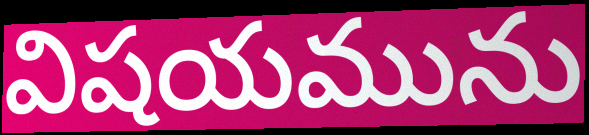
విషయమును